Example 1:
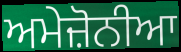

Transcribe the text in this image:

ਅਮੇਜ਼ੋਨੀਆ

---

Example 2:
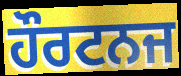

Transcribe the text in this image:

ਹੌਰਟਨਜ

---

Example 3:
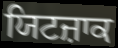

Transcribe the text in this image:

ਯਿਟਜ਼ਾਕ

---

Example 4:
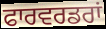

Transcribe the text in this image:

ਫਾਰਵਰਡਰਾਂ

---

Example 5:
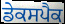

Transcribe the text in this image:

ਡੇਕਸਪੈਕ